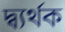
দ্ব্যর্থক